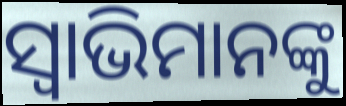
ସ୍ୱାଭିମାନଙ୍କୁ